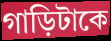
গাড়িটাকে